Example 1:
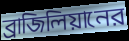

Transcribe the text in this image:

ব্রাজিলিয়ানের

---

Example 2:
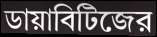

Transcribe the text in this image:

ডায়াবিটিজের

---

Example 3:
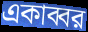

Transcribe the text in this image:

একাব্বর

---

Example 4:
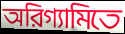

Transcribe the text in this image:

অরিগ্যামিতে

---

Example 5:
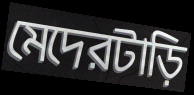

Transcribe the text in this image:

মেদেরটাড়ি